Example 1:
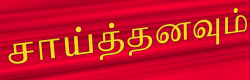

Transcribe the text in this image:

சாய்த்தனவும்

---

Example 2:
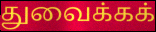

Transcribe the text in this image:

துவைக்கக்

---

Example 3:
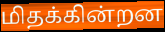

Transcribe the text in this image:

மிதக்கின்றன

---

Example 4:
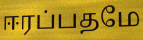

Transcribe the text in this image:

ஈரப்பதமே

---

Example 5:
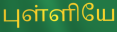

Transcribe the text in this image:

புள்ளியே